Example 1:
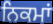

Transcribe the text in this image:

ਨਿਕਮਾਂ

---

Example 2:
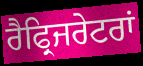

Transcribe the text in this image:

ਰੈਫ੍ਰਿਜਰੇਟਰਾਂ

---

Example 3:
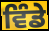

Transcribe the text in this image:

ਵਿੰਡੇ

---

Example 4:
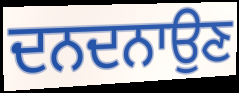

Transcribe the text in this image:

ਦਨਦਨਾਉਣ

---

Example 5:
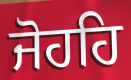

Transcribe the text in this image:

ਜੋਹਹਿ